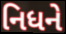
નિધને